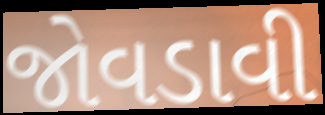
જોવડાવી